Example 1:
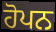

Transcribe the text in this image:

ਹੋਪਨ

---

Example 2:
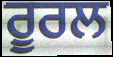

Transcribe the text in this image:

ਰੂਰਲ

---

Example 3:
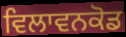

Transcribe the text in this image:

ਵਿਲਾਵਨਕੋਡ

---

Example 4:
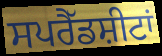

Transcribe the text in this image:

ਸਪਰੈੱਡਸ਼ੀਟਾਂ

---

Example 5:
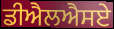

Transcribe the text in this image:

ਡੀਐਲਐਸਏ